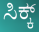
ಸಿಕ್ಕ್